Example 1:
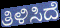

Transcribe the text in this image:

ತಿಳಿಸಿದೆ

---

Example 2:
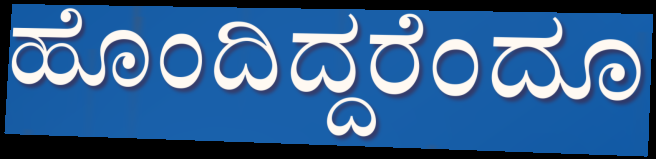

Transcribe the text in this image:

ಹೊಂದಿದ್ದರೆಂದೂ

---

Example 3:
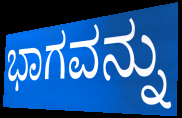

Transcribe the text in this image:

ಭಾಗವನ್ನು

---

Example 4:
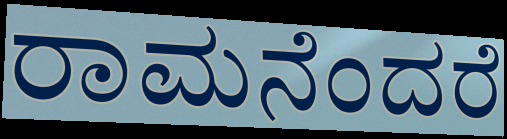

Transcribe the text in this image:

ರಾಮನೆಂದರೆ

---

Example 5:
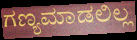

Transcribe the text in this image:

ಗಣ್ಯಮಾಡಲಿಲ್ಲ